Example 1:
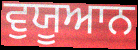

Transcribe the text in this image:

ਵੁਯੂਆਨ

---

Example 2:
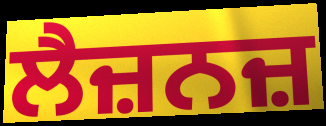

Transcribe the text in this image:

ਲੈਜ਼ਨਜ਼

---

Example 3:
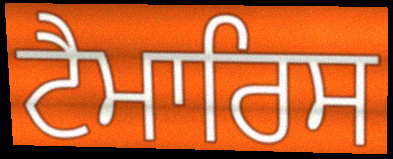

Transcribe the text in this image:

ਟੈਮਾਰਿਸ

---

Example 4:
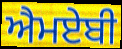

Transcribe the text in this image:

ਐਮਏਬੀ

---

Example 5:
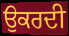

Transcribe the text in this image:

ਉਕਰਦੀ